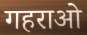
गहराओ